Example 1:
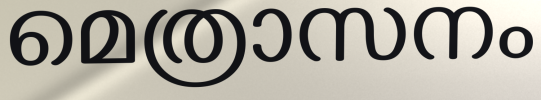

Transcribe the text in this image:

മെത്രാസനം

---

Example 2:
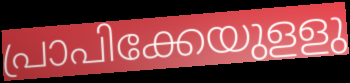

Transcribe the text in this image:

പ്രാപിക്കേയുളളു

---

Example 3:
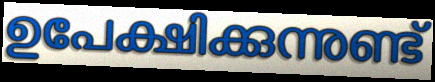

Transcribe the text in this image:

ഉപേക്ഷിക്കുന്നുണ്ട്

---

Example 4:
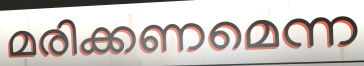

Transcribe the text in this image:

മരിക്കണമെന്ന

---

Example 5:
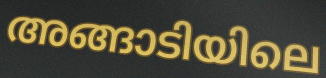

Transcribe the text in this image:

അങ്ങാടിയിലെ